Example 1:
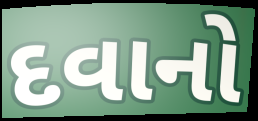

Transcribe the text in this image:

દવાનો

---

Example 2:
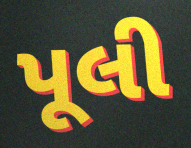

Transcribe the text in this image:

પૂલી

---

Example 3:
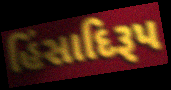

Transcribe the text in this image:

હિંસાદિરૂપ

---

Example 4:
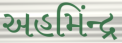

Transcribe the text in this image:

અહમિંન્દ્ર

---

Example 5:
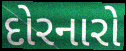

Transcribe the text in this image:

દોરનારો